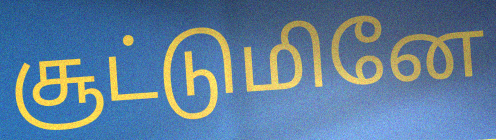
சூட்டுமினே